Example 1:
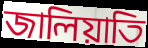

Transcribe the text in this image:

জালিয়াতি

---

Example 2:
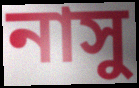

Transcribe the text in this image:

নাসু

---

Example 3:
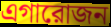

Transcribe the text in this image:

এগারোজন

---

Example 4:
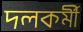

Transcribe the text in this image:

দলকর্মী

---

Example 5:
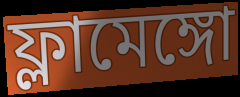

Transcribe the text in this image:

ফ্লামেঙ্গো